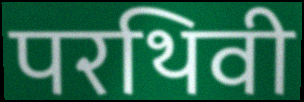
परथिवी